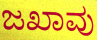
ಜಖಾವು